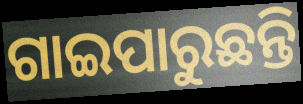
ଗାଇପାରୁଛନ୍ତି